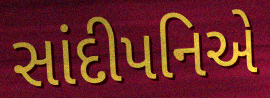
સાંદીપનિએ